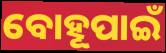
ବୋହୂପାଇଁ